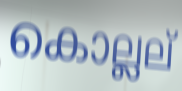
കൊല്ലല്